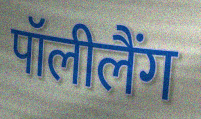
पॉलीलैंग